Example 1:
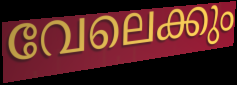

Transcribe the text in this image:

വേലെക്കും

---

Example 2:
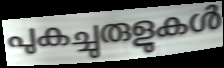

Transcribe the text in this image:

പുകച്ചുരുളുകൾ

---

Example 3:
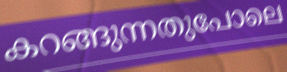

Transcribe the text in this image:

കറങ്ങുന്നതുപോലെ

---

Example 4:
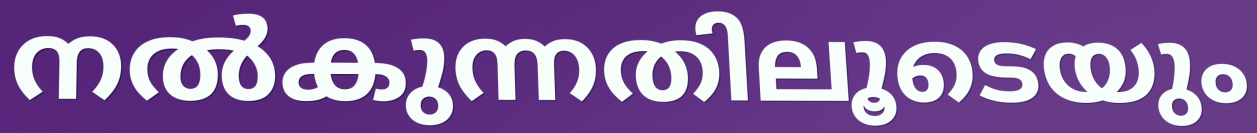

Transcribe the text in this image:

നൽകുന്നതിലൂടെയും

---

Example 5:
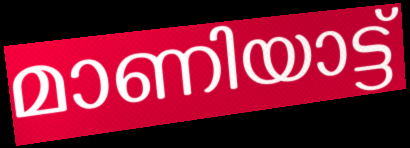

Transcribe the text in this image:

മാണിയാട്ട്